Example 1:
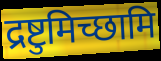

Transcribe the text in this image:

द्रष्टुमिच्छामि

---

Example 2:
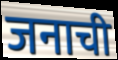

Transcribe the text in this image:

जनाची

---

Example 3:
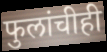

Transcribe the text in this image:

फुलांचीही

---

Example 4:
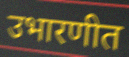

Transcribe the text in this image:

उभारणीत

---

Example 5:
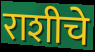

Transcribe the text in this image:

राशीचे